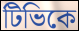
টিভিকে